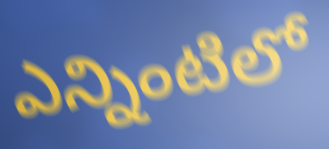
ఎన్నింటిలో